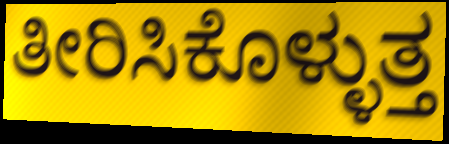
ತೀರಿಸಿಕೊಳ್ಳುತ್ತ